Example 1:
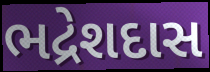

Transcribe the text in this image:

ભદ્રેશદાસ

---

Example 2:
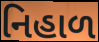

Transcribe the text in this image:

નિહાળ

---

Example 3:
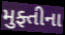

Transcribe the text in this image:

મુફ્તીના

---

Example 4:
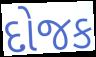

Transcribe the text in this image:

દોજક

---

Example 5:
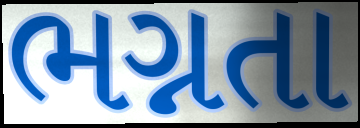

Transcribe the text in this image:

ભગ્નતા